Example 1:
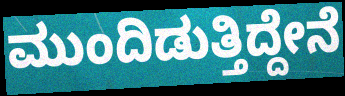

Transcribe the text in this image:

ಮುಂದಿಡುತ್ತಿದ್ದೇನೆ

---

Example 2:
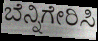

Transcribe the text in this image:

ಬೆನ್ನಿಗೇರಿಸಿ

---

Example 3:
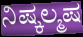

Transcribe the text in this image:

ನಿಷ್ಕಲ್ಮಷ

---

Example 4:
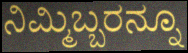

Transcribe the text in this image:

ನಿಮ್ಮಿಬ್ಬರನ್ನೂ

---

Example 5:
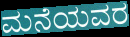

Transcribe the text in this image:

ಮನೆಯವರ